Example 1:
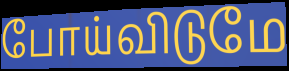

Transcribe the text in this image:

போய்விடுமே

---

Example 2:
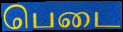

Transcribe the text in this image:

பெடை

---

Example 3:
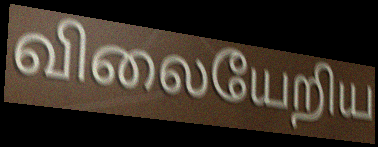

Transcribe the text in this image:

விலையேறிய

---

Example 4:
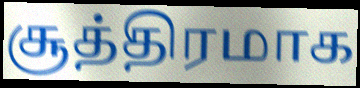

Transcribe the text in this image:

சூத்திரமாக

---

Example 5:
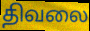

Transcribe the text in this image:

திவலை